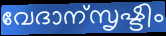
വേദാന്സൃഷ്ടിം